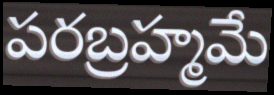
పరబ్రహ్మమే